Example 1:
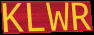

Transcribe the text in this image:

KLWR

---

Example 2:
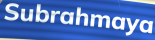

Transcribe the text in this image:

Subrahmaya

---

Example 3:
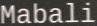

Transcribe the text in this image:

Mabali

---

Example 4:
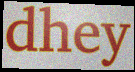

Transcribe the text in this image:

dhey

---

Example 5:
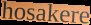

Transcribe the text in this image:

hosakere